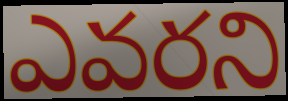
ఎవరని